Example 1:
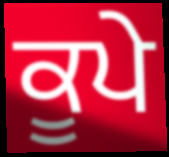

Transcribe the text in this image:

ਕੂਪੇ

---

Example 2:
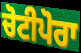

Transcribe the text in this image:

ਚੋਟੀਪੋਰਾ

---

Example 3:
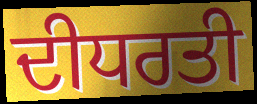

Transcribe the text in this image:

ਦੀਧਰਤੀ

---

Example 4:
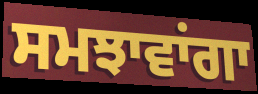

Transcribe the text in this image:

ਸਮਝਾਵਾਂਗਾ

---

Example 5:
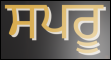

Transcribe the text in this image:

ਸਪਰੂ